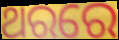
ଥରରେ